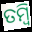
ତମ୍ବି